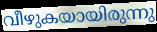
വീഴുകയായിരുന്നു